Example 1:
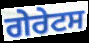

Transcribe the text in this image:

ਗੇਰੇਟਸ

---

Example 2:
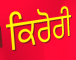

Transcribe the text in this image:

ਕਿਰੋਰੀ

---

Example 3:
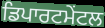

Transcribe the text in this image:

ਡਿਪਾਰਟਮੇਂਟਲ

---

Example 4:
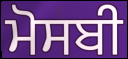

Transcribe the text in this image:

ਮੋਸਬੀ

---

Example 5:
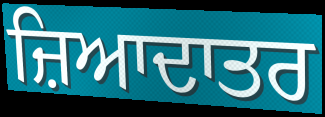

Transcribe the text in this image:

ਜ਼ਿਆਦਾਤਰ